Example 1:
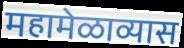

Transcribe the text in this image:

महामेळाव्यास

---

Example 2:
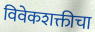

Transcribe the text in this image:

विवेकशक्तीचा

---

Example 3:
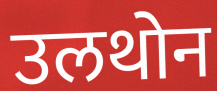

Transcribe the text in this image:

उलथोन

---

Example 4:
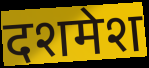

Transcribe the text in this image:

दशमेश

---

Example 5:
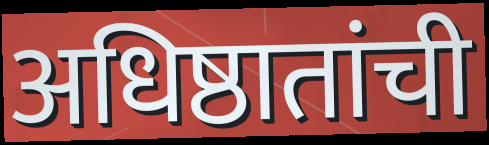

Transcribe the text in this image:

अधिष्ठातांची